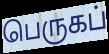
பெருகப்